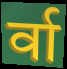
र्वा